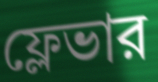
ফ্লেভার